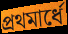
প্রথমার্ধে